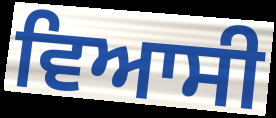
ਵਿਆਸੀ